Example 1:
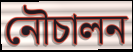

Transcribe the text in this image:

নৌচালন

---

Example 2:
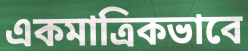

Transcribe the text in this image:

একমাত্রিকভাবে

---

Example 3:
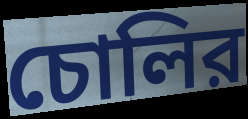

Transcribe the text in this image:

চোলির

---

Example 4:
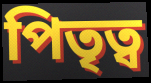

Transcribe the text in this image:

পিতৃত্ব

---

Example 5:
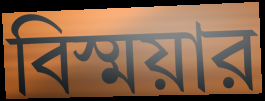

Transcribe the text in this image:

বিস্ময়ার